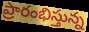
ప్రారంభిస్తున్న